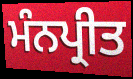
ਮੰਨਪ੍ਰੀਤ